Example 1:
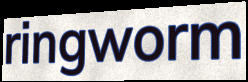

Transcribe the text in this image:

ringworm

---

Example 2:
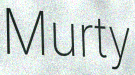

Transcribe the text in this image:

Murty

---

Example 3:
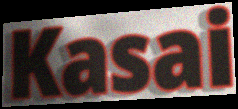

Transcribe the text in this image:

Kasai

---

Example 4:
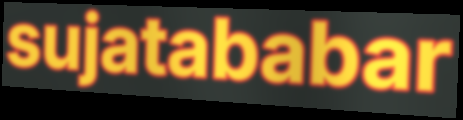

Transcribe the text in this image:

sujatababar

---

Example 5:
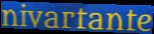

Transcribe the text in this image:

nivartante